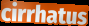
cirrhatus